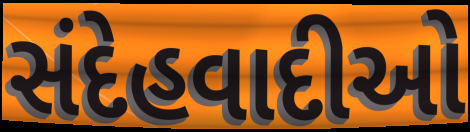
સંદેહવાદીઓ